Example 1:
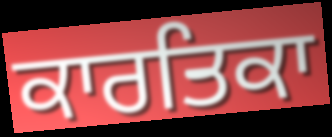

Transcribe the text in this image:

ਕਾਰਤਿਕਾ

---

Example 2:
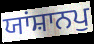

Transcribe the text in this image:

ਯਾਂਸ਼ਾਨਪੁ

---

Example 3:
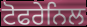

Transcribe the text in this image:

ਟੋਫਰੇਨਿਲ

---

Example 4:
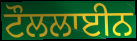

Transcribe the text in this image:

ਟੌਲਲਾਈਨ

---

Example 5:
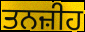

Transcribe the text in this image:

ਤਨਜ਼ੀਹ